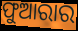
ଫୁଆରାର